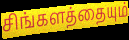
சிங்களத்தையும்